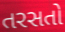
તરસતો